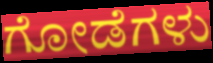
ಗೋಡೆಗಳು